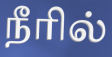
நீரில்